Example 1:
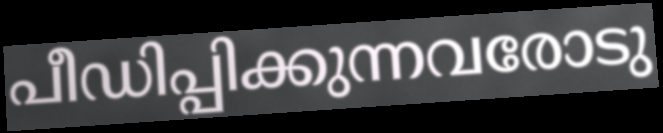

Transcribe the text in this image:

പീഡിപ്പിക്കുന്നവരോടു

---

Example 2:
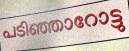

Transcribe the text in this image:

പടിഞ്ഞാറോട്ടു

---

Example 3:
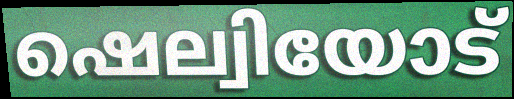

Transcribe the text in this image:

ഷെല്വിയോട്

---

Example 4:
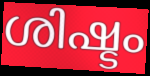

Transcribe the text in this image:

ശിഷ്ടം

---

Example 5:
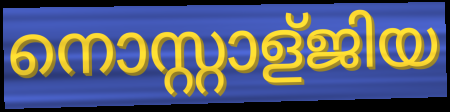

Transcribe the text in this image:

നൊസ്റ്റാള്ജിയ